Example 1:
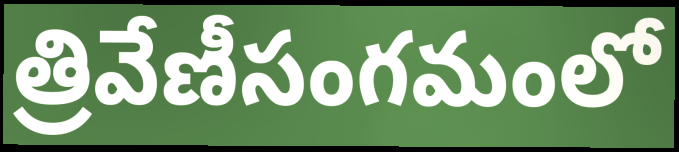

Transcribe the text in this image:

త్రివేణీసంగమంలో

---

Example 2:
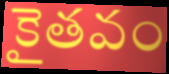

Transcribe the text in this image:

కైతవం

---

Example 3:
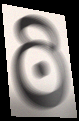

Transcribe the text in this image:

ఠి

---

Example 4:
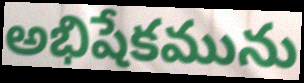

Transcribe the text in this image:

అభిషేకమును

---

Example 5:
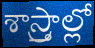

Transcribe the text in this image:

శాస్ర్తాల్లో